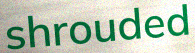
shrouded